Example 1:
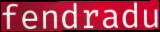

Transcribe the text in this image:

fendradu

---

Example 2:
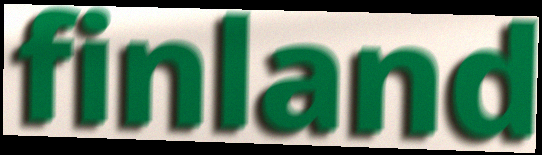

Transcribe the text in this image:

finland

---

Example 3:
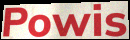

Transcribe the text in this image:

Powis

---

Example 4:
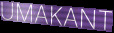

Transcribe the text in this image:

UMAKANT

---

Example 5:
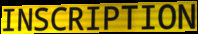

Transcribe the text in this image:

INSCRIPTION